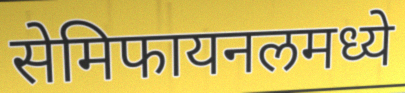
सेमिफायनलमध्ये